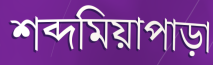
শব্দমিয়াপাড়া